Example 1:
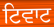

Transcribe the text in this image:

ਟਿਵਾਟ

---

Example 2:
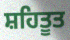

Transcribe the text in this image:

ਸ਼ਹਿਤੂਤ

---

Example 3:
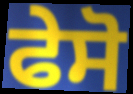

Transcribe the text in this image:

ਫੇਸੋ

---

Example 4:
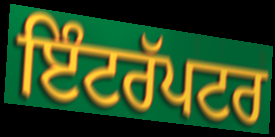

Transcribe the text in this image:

ਇੰਟਰੱਪਟਰ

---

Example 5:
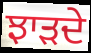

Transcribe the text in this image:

ਝਾੜਦੇ